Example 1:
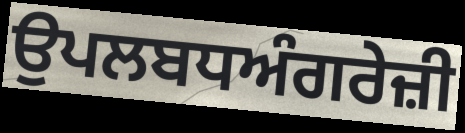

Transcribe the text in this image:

ਉਪਲਬਧਅੰਗਰੇਜ਼ੀ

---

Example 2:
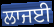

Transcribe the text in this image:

ਲਾਜਈ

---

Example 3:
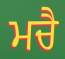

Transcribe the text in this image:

ਮਚੈ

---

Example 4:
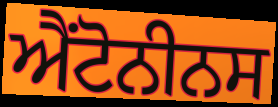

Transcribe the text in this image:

ਐਂਟੋਨੀਨਸ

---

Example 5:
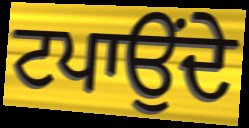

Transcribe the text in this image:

ਟਪਾਉਂਦੇ